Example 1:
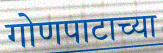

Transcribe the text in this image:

गोणपाटाच्या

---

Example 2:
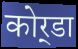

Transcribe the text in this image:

कोर्डा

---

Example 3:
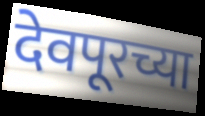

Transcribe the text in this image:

देवपूरच्या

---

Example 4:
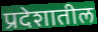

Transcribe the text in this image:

प्रदेशातील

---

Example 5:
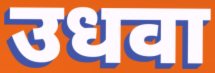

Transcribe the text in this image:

उधवा